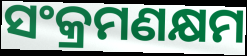
ସଂକ୍ରମଣକ୍ଷମ